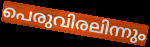
പെരുവിരലിന്നും